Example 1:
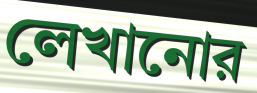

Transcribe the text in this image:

লেখানোর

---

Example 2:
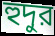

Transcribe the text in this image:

হুদুর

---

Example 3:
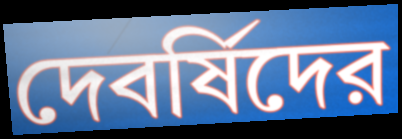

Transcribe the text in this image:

দেবর্ষিদের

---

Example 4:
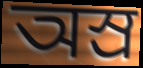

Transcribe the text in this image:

অস্র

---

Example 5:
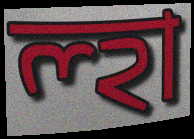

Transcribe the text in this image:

ল্হা